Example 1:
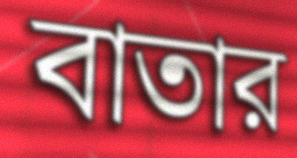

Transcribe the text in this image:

বাতার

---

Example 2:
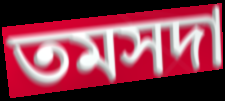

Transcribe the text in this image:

তমসদা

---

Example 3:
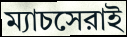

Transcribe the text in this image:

ম্যাচসেরাই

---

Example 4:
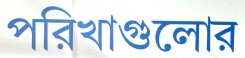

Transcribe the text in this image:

পরিখাগুলোর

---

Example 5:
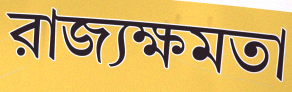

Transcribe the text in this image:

রাজ্যক্ষমতা